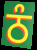
ਠੰ